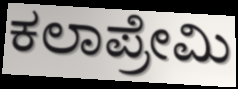
ಕಲಾಪ್ರೇಮಿ